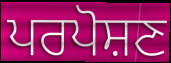
ਪਰਪੋਸ਼ਣ